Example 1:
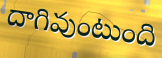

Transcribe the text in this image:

దాగివుంటుంది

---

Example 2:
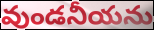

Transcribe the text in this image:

వుండనీయను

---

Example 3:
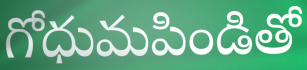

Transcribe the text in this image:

గోధుమపిండితో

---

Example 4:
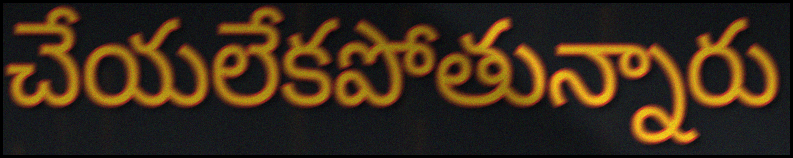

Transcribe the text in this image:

చేయలేకపోతున్నారు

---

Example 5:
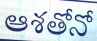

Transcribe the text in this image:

ఆశతోనో